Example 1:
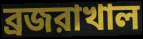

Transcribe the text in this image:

ব্রজরাখাল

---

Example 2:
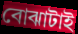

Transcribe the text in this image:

বোঝাটাই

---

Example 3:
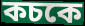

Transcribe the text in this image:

কচকে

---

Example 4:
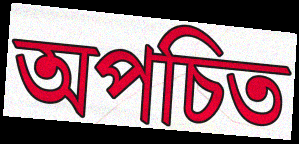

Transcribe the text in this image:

অপচিত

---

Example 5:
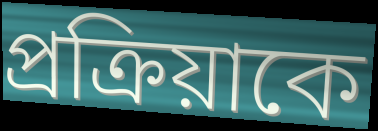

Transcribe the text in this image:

প্রক্রিয়াকে